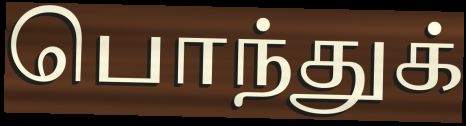
பொந்துக்